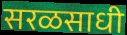
सरळसाधी